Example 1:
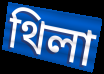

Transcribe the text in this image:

থিলা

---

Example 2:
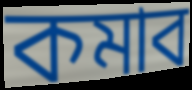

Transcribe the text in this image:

কমাব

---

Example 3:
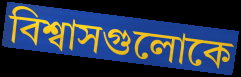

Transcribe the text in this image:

বিশ্বাসগুলোকে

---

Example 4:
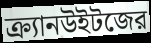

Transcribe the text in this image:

ক্র্যানউইটজের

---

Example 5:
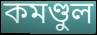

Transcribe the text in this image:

কমণ্ডুল